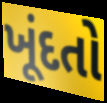
ખૂંદતો